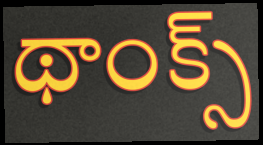
థాంక్స్